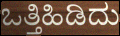
ಒತ್ತಿಹಿಡಿದು